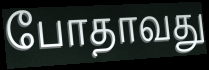
போதாவது